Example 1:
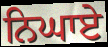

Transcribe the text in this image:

ਨਿਘਾਏ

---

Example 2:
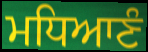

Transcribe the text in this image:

ਮਧਿਆਣੰ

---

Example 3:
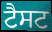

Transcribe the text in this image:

ਟੈਸਟ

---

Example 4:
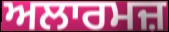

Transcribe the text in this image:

ਅਲਾਰਮਜ਼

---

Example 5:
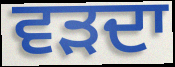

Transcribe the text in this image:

ਵੜਦਾ